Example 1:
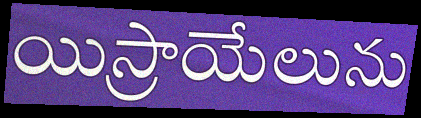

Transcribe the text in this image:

యిస్రాయేలును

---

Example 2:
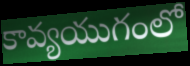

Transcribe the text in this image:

కావ్యయుగంలో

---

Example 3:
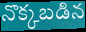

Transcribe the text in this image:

నొక్కబడిన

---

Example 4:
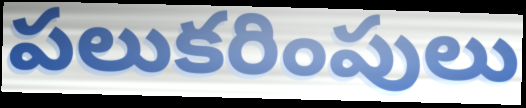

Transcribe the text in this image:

పలుకరింపులు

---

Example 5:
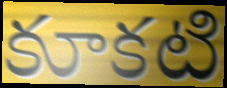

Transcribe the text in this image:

కూకటి